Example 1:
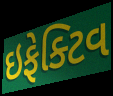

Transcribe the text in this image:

ઇફેક્ટિવ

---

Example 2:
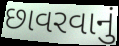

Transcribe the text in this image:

છાવરવાનું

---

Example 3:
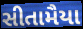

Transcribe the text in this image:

સીતામૈયા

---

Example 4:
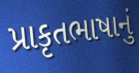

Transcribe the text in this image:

પ્રાકૃતભાષાનું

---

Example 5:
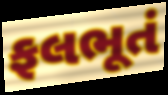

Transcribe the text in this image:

ફલભૂતં